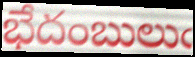
భేదంబులుఁ